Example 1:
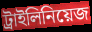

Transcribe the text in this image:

ট্রাইলিনিয়েজ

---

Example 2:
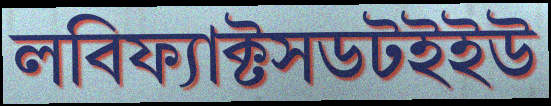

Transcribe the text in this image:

লবিফ্যাক্টসডটইইউ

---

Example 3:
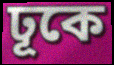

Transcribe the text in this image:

ঢূকে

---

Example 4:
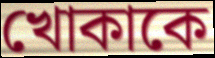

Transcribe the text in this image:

খোকাকে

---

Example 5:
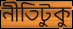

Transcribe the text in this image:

নীতিটুকু